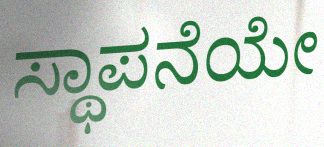
ಸ್ಥಾಪನೆಯೇ